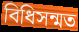
বিধিসন্মত